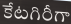
కేటగిరీగా